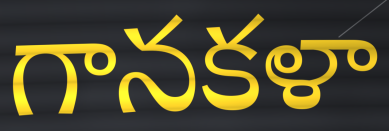
గానకళా